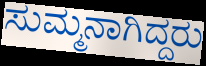
ಸುಮ್ಮನಾಗಿದ್ದರು